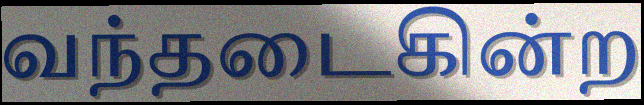
வந்தடைகின்ற